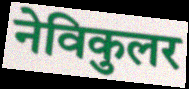
नेविकुलर